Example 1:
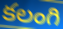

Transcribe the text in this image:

కలంగి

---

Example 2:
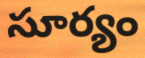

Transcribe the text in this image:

సూర్యం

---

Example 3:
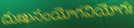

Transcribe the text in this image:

దుఃఖసంయోగవియోగః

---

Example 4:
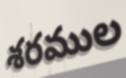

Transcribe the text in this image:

శరముల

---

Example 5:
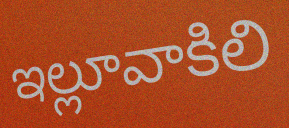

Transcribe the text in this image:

ఇల్లూవాకిలి